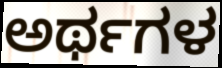
ಅರ್ಥಗಳ